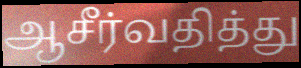
ஆசீர்வதித்து